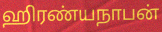
ஹிரண்யநாபன்